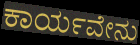
ಕಾರ್ಯವೇನು